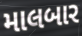
માલબાર